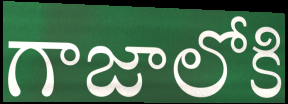
గాజాలోకి